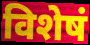
विशेषं